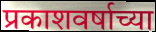
प्रकाशवर्षाच्या